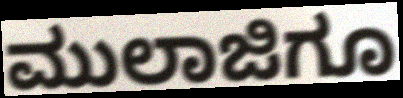
ಮುಲಾಜಿಗೂ